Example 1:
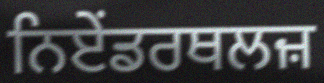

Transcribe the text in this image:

ਨਿਏਂਡਰਥਲਜ਼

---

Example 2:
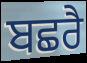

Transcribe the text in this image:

ਬਛਰੈ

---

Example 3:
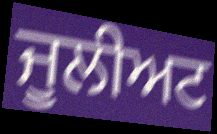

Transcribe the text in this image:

ਜੂਲੀਅਟ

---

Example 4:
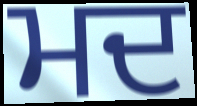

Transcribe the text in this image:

ਮਦ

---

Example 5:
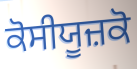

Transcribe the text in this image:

ਕੋਸੀਯੂਜ਼ਕੋ